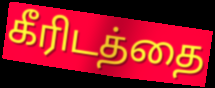
கீரிடத்தை